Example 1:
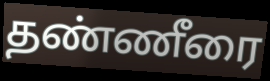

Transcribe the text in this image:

தண்ணீரை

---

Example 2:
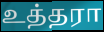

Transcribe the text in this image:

உத்தரா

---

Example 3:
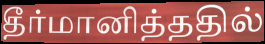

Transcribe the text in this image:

தீர்மானித்ததில்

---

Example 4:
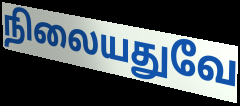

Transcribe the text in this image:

நிலையதுவே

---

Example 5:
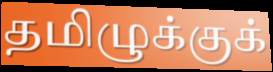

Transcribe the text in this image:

தமிழுக்குக்